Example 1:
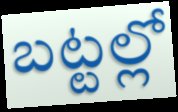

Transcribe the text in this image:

బట్టల్లో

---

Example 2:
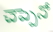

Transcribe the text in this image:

చెప్పెనో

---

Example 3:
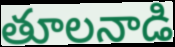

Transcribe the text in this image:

తూలనాడి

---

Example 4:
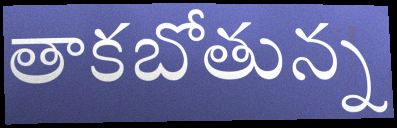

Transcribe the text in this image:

తాకబోతున్న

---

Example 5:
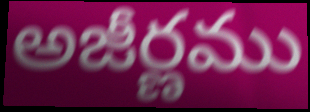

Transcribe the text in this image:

అజీర్ణము